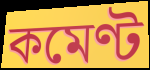
কমেণ্ট